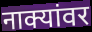
नाक्यांवर